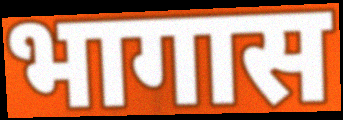
भागास